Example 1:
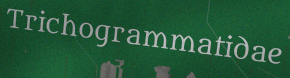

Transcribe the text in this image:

Trichogrammatidae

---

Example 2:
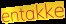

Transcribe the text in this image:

entakke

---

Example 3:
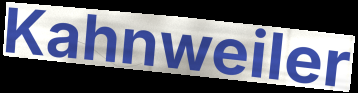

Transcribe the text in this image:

Kahnweiler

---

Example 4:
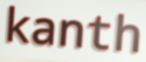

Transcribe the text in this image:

kanth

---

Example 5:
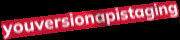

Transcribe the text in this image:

youversionapistaging